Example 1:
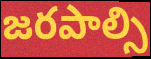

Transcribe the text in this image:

జరపాల్సి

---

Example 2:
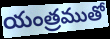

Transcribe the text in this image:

యంత్రముతో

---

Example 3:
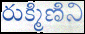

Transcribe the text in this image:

రుక్మిణిని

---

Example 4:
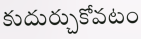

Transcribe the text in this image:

కుదుర్చుకోవటం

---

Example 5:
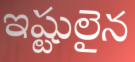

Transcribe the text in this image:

ఇష్టులైన